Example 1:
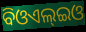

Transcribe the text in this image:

ବିଓଏଲ୍ଇଓ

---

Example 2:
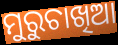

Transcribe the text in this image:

ମୁରୁଚାଖିଆ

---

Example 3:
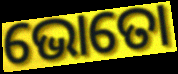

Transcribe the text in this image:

ଭୋତୋ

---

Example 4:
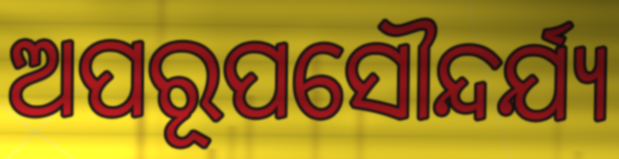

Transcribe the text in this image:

ଅପରୂପସୌନ୍ଦର୍ଯ୍ୟ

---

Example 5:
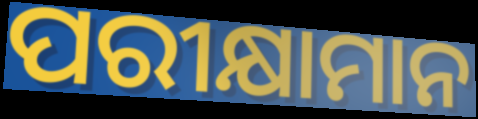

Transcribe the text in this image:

ପରୀକ୍ଷାମାନ